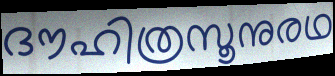
ദൗഹിത്രസൂനുരഥ